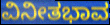
ವಿನೀತಭಾವ